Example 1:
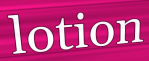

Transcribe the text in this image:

lotion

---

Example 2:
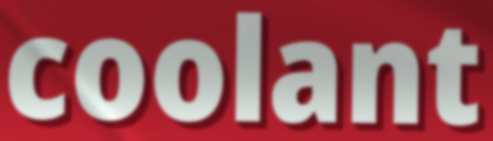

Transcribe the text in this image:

coolant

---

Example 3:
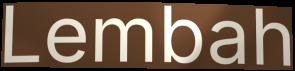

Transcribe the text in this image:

Lembah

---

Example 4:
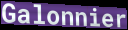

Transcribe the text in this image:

Galonnier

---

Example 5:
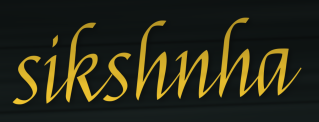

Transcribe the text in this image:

sikshnha